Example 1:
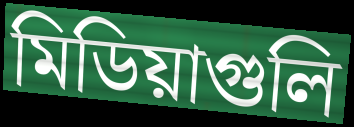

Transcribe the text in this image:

মিডিয়াগুলি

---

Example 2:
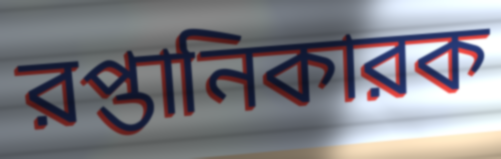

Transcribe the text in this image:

রপ্তানিকারক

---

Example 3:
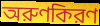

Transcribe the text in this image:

অরুণকিরণ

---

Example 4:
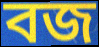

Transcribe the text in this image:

বজ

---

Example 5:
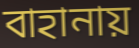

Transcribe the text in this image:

বাহানায়